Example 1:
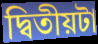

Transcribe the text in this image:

দ্বিতীয়টা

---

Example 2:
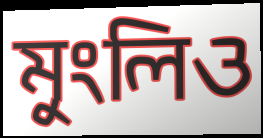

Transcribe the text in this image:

মুংলিও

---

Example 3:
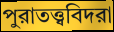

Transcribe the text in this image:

পুরাতত্ত্ববিদরা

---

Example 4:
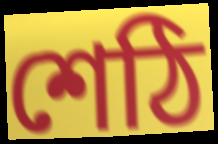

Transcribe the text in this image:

শেঠি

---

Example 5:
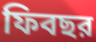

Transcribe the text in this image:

ফিবছর